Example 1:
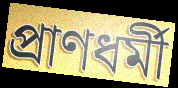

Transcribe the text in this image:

প্রাণধর্মী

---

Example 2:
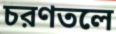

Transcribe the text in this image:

চরণতলে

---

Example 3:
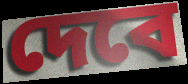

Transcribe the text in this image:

দেবে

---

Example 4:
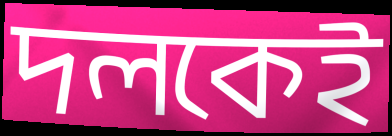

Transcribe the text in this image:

দলকেই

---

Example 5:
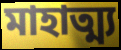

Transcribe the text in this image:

মাহাত্ম্য